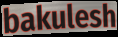
bakulesh